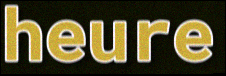
heure